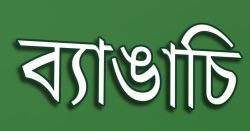
ব্যাঙাচি